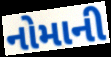
નોમાની